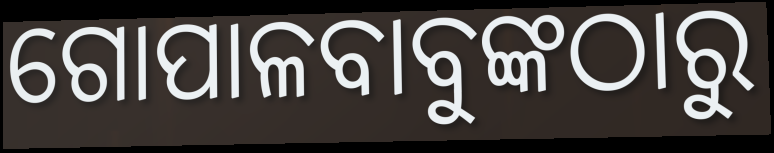
ଗୋପାଳବାବୁଙ୍କଠାରୁ